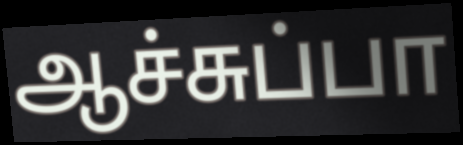
ஆச்சுப்பா